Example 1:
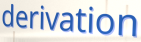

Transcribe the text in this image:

derivation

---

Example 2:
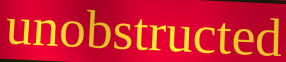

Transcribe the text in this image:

unobstructed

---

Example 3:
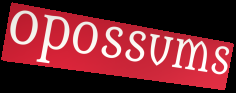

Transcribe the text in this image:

opossums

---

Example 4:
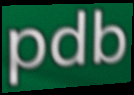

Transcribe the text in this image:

pdb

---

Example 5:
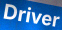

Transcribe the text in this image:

Driver